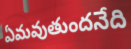
ఏమవుతుందనేది